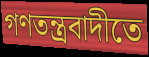
গণতন্ত্রবাদীতে